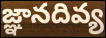
జ్ఞానదివ్య